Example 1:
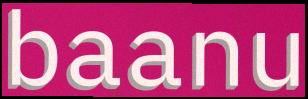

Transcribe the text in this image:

baanu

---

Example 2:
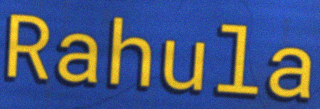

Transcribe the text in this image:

Rahula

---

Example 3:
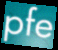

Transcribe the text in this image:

pfe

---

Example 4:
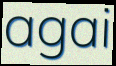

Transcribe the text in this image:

agai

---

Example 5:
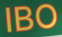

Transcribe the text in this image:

IBO